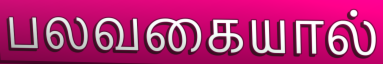
பலவகையால்